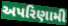
અપરિણામી